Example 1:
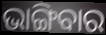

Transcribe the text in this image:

ଭାଙ୍ଗିବାର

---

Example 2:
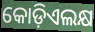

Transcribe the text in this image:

କୋଡ଼ିଏଲକ୍ଷ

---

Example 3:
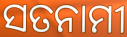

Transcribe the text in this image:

ସତନାମୀ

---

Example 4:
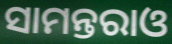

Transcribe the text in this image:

ସାମନ୍ତରାଓ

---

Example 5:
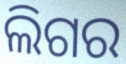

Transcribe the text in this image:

ଲିଗର